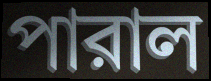
পারাল